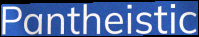
Pantheistic